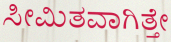
ಸೀಮಿತವಾಗಿತ್ತೇ